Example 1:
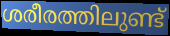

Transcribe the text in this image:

ശരീരത്തിലുണ്ട്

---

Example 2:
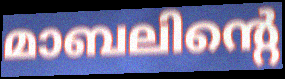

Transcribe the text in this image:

മാബലിന്റെ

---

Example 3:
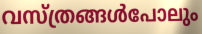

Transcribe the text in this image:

വസ്ത്രങ്ങൾപോലും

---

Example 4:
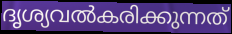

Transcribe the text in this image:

ദൃശ്യവൽകരിക്കുന്നത്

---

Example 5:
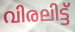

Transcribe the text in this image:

വിരലിട്ട്